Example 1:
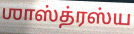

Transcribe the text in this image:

ஶாஸ்த்ரஸ்ய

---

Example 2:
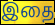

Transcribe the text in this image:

இதை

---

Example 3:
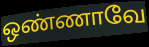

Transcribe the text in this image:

ஒண்ணாவே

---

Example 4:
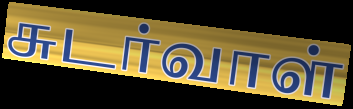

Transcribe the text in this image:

சுடர்வாள்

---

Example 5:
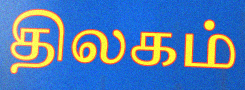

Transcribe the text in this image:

திலகம்